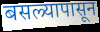
बसल्यापासून